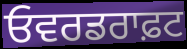
ਓਵਰਡਰਾਫ਼ਟ